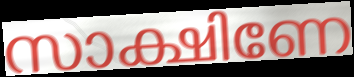
സാക്ഷിണേ